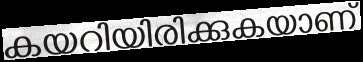
കയറിയിരിക്കുകയാണ്